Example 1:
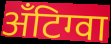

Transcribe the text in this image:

अँटिग्वा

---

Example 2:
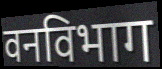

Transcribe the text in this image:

वनविभाग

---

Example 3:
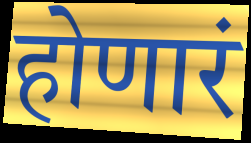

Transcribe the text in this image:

होणारं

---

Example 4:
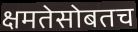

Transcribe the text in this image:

क्षमतेसोबतच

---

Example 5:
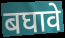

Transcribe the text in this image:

बघावे